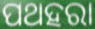
ପଥହରା